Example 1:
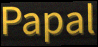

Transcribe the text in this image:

Papal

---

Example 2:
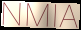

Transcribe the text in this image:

NMIA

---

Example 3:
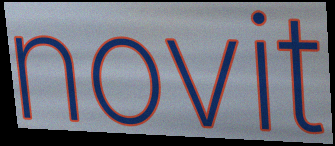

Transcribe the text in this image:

novit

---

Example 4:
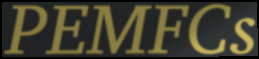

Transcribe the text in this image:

PEMFCs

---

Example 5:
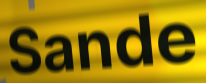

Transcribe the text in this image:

Sande